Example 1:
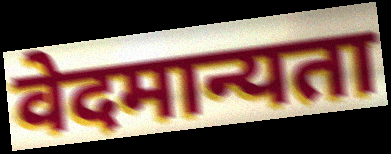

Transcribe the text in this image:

वेदमान्यता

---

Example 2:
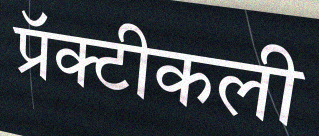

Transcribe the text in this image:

प्रॅक्टीकली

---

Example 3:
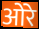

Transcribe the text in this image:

ओरे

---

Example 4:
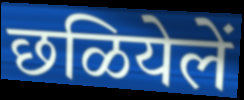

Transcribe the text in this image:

छळियेलें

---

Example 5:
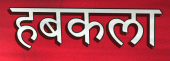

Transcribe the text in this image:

हबकला